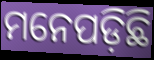
ମନେପଡ଼ିଛି